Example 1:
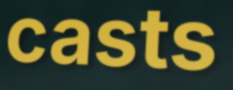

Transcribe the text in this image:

casts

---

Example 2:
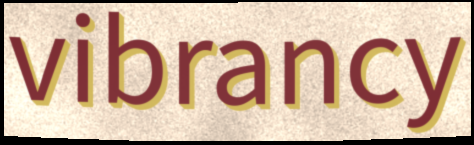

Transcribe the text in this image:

vibrancy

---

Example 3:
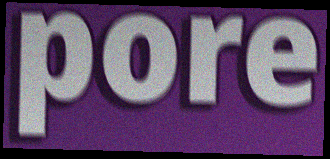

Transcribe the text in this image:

pore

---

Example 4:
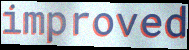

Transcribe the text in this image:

improved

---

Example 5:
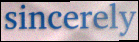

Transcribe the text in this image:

sincerely